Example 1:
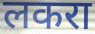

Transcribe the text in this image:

लकरा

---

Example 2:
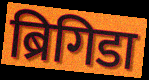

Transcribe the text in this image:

ब्रिगिडा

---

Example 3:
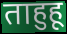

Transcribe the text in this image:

ताहुहू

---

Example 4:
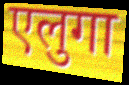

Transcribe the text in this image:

एलुगा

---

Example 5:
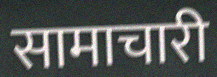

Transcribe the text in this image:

सामाचारी